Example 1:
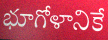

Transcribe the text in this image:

భూగోళానికే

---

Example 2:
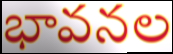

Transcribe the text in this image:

భావనల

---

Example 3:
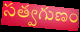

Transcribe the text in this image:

సత్వగుణం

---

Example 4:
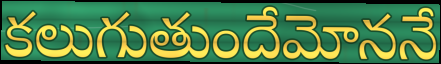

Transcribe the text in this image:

కలుగుతుందేమోననే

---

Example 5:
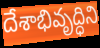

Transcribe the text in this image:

దేశాభివృద్ధిని